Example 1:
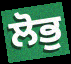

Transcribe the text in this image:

ਲੋਭੁ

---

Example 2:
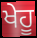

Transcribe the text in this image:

ਖੇਹੂ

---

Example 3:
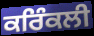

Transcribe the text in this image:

ਕਰਿੰਕਲੀ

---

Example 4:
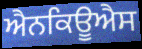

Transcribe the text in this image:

ਐਨਕਿਊਐਸ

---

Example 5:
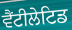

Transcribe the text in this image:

ਵੈਂਟੀਲੇਟਿਡ